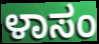
ಳಾಸಂ